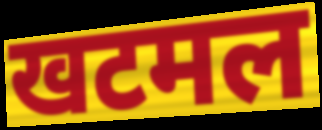
खटमल